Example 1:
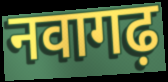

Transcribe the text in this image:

नवागढ़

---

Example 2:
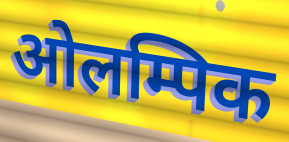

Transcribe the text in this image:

ओलम्पिक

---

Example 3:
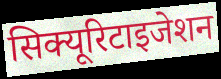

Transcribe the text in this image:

सिक्यूरिटाइजेशन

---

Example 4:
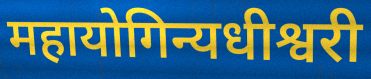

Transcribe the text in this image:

महायोगिन्यधीश्वरी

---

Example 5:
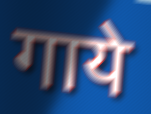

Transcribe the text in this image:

गाये